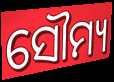
ସୌମ୍ଯ